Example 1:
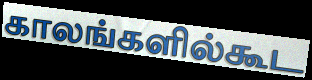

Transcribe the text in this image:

காலங்களில்கூட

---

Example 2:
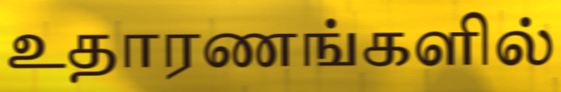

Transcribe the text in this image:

உதாரணங்களில்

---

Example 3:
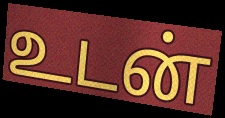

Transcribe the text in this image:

உடன்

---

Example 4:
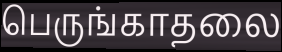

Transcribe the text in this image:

பெருங்காதலை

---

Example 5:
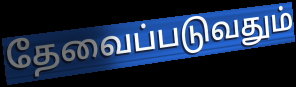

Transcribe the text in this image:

தேவைப்படுவதும்